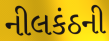
નીલકંઠની